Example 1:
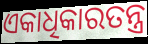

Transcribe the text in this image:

ଏକାଧିକାରତନ୍ତ୍ର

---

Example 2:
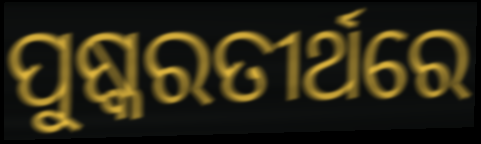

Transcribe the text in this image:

ପୁଷ୍କରତୀର୍ଥରେ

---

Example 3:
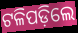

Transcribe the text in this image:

ଟଳିପଡ଼ିଲେ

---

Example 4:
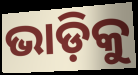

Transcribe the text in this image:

ଭାଡ଼ିକୁ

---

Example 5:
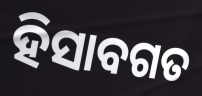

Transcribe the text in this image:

ହିସାବଗତ